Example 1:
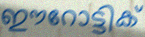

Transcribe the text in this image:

ഈറോട്ടിക്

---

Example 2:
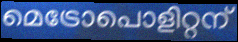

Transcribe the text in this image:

മെട്രോപൊളിറ്റന്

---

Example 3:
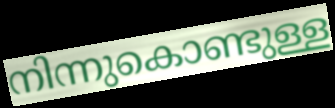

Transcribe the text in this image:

നിന്നുകൊണ്ടുള്ള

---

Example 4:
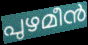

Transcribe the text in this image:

പുഴമീൻ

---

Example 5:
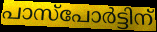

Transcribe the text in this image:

പാസ്പോർട്ടിന്